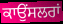
ਕਾਉਂਸਲਰਾਂ